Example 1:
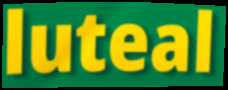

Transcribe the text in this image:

luteal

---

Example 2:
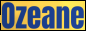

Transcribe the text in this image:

Ozeane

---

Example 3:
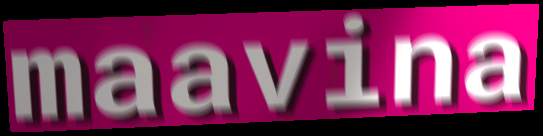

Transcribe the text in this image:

maavina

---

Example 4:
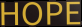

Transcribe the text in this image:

HOPE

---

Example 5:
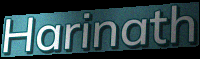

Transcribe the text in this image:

Harinath